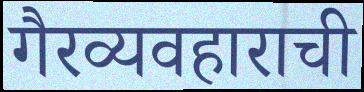
गैरव्यवहाराची